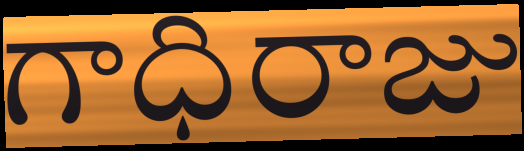
గాధిరాజు